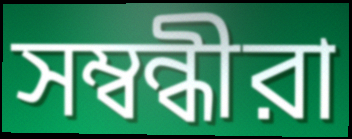
সম্বন্ধীরা